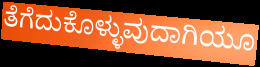
ತೆಗೆದುಕೊಳ್ಳುವುದಾಗಿಯೂ